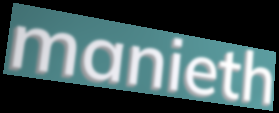
manieth